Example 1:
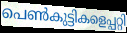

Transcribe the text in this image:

പെൺകുട്ടികളെപ്പറ്റി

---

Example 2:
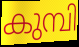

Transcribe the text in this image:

കുമ്പി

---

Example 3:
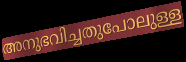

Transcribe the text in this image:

അനുഭവിച്ചതുപോലുള്ള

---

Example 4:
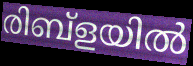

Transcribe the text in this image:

രിബ്ളയിൽ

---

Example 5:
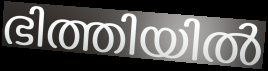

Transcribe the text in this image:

ഭിത്തിയിൽ